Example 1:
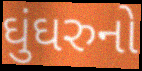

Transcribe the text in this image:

ઘુંઘરુનો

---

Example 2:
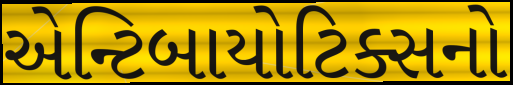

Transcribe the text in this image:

એન્ટિબાયોટિક્સનો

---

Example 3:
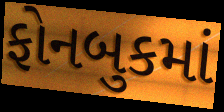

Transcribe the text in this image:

ફોનબુકમાં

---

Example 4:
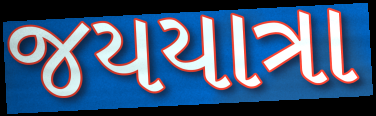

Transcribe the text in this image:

જયયાત્રા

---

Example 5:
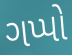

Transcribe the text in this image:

ગપ્પો